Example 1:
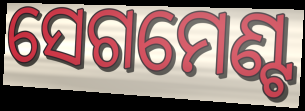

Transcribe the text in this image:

ସେଗମେଣ୍ଟ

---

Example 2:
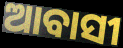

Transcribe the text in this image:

ଆବାସୀ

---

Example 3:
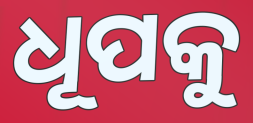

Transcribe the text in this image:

ଧୂପକୁ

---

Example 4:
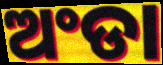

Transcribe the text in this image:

ଅଂଡା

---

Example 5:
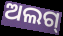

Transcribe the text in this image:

ଅଲଗ୍